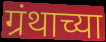
ग्रंथाच्या